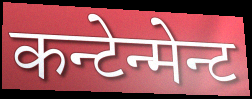
कन्टेन्मेन्ट